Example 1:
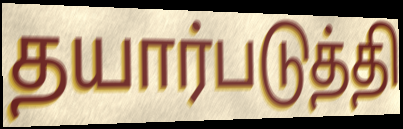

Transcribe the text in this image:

தயார்படுத்தி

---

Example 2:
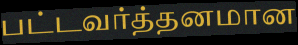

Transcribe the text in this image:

பட்டவர்த்தனமான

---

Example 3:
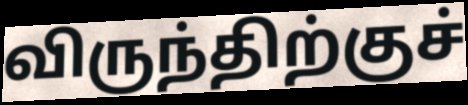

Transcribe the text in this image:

விருந்திற்குச்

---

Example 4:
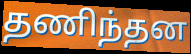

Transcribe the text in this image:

தணிந்தன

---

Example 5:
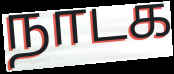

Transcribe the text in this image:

நாடக